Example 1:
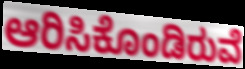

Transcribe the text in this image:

ಆರಿಸಿಕೊಂಡಿರುವೆ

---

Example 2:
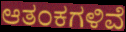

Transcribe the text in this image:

ಆತಂಕಗಳಿವೆ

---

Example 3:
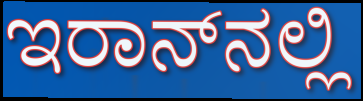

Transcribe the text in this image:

ಇರಾನ್‌ನಲ್ಲಿ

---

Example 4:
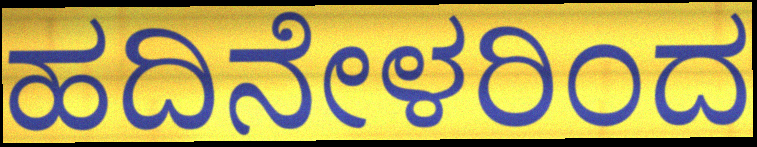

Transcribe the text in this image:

ಹದಿನೇಳರಿಂದ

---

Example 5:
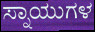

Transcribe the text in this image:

ಸ್ನಾಯುಗಳ